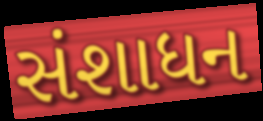
સંશાધન